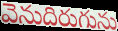
వెనుదిరుగును